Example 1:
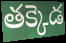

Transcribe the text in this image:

తక్కెడ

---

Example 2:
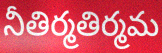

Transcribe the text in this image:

నీతిర్మతిర్మమ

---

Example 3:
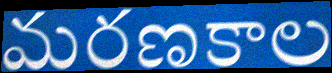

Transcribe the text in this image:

మరణకాల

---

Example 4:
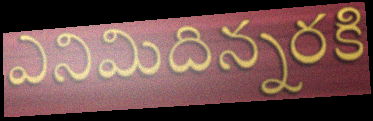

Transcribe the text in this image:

ఎనిమిదిన్నరకి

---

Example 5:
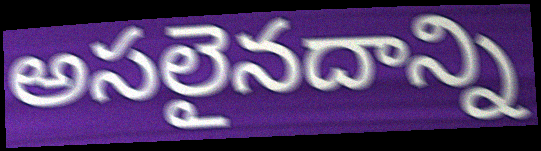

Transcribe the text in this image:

అసలైనదాన్ని